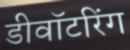
डीवॉटरिंग